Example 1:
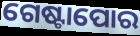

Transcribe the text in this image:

ଗେଷ୍ଟାପୋର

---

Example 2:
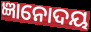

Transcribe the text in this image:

ଜ୍ଞାନୋଦୟ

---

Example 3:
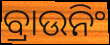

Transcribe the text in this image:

ବ୍ରାଉନିଂ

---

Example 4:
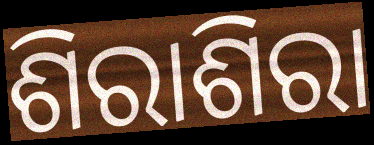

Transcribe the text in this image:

ଶିରାଶିରା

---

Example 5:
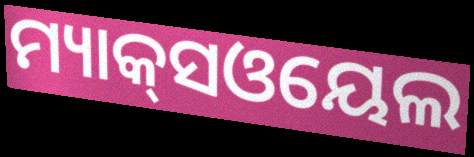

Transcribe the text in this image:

ମ୍ୟାକ୍‌ସଓୟେଲ